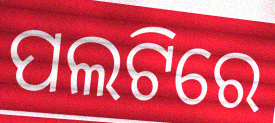
ପଲଟିରେ